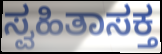
ಸ್ವಹಿತಾಸಕ್ತ